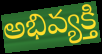
అభివ్యక్తి